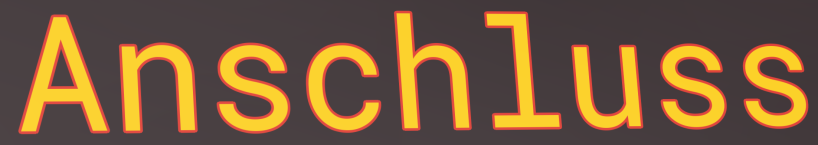
Anschluss